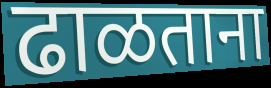
ढाळताना